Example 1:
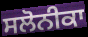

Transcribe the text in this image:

ਸਲੋਨੀਕਾ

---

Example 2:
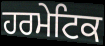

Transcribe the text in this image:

ਹਰਮੇਟਿਕ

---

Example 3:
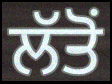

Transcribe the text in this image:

ਲੱਤੋਂ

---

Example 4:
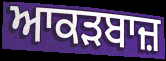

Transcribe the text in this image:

ਆਕੜਬਾਜ਼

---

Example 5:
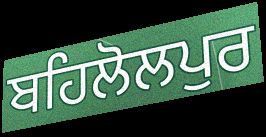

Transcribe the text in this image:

ਬਹਿਲੋਲਪੁਰ